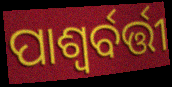
ପାଶ୍ୱର୍ବର୍ତ୍ତୀ